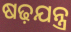
ଷଢ଼ଯନ୍ତ୍ର